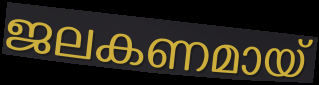
ജലകണമായ്